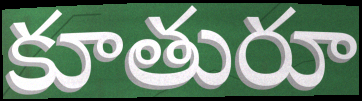
కూతురూ